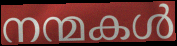
നന്മകൾ